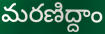
మరణిద్దాం